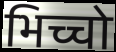
भिच्चो